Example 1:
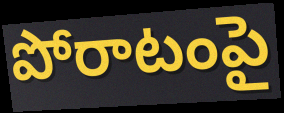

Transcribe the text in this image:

పోరాటంపై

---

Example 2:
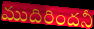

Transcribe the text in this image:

ముదిరిందనీ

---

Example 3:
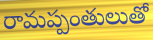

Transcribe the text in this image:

రామప్పంతులుతో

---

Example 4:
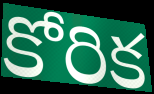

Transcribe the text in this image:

కోరిక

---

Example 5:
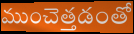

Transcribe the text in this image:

ముంచెత్తడంతో